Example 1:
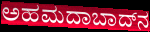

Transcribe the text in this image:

ಅಹಮದಾಬಾದ್‌ನ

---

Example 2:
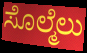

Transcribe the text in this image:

ಸೊಲ್ಮೆಲು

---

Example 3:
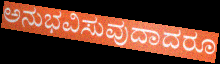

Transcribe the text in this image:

ಅನುಭವಿಸುವುದಾದರೂ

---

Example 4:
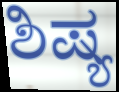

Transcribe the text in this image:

ಶಿಷ್ಯ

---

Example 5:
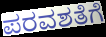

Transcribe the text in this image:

ಪರವಶತೆಗೆ